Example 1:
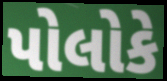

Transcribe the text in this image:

પોલોકે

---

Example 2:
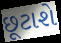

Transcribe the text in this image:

છૂટાશે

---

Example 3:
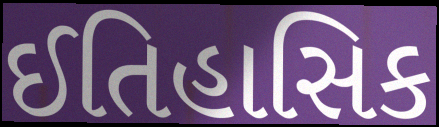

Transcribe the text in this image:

ઈતિહાસિક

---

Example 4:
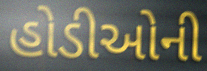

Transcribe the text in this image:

હોડીઓની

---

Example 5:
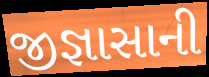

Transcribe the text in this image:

જીજ્ઞાસાની